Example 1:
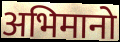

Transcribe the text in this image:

अभिमानो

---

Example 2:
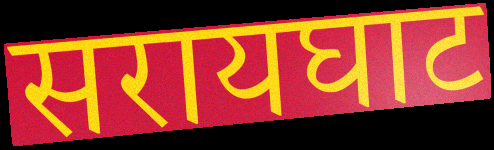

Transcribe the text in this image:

सरायघाट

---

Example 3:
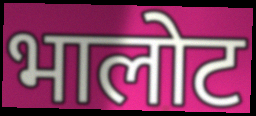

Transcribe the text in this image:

भालोट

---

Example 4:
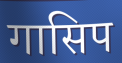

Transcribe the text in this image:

गासिप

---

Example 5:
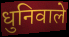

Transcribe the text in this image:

धुनिवाले